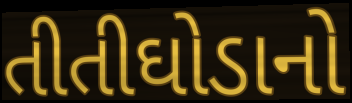
તીતીઘોડાનો